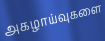
அகழாய்வுகளை